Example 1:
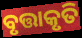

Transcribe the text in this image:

ବୃତ୍ତାକୃତି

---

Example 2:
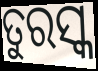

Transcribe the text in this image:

ତୁରସ୍କ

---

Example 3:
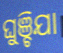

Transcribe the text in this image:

ଘୁଞ୍ଚିଯା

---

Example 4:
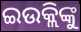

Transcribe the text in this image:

ଇଉକ୍ଲିଙ୍କୁ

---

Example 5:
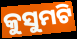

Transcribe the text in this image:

କୁସୁମଟି